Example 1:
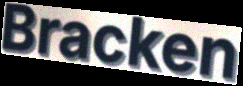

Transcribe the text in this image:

Bracken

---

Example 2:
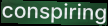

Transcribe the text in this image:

conspiring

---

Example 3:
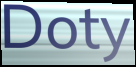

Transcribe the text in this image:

Doty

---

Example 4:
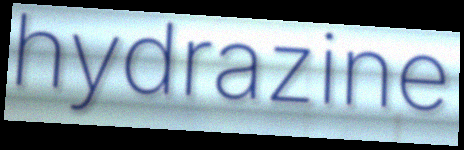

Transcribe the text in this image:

hydrazine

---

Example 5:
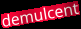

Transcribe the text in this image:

demulcent